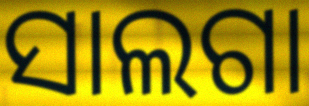
ସାଲଗା